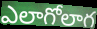
ఎలాగోలాగ